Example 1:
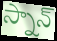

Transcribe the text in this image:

స్నాన్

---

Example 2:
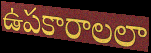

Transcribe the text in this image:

ఉపకారాలలా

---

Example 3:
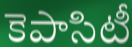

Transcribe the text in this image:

కెపాసిటీ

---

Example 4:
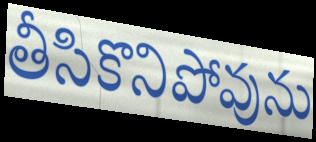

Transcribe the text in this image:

తీసికొనిపోవును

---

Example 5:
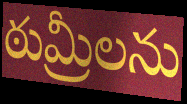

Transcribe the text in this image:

ఠుమ్రీలను